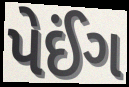
પેઈંગ